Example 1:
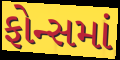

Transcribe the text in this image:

ફોન્સમાં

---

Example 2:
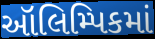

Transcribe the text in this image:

ઑલિમ્પિકમાં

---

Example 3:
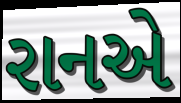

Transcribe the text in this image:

રાનએ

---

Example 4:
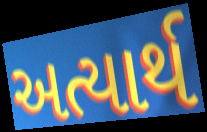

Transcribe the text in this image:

અત્યાર્થ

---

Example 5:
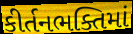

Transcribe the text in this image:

કીર્તનભક્તિમાં